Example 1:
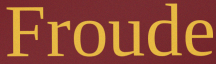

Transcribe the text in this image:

Froude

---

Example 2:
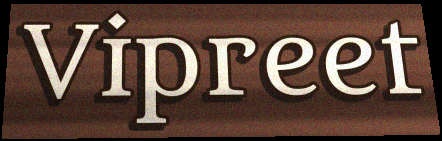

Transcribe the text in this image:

Vipreet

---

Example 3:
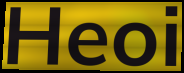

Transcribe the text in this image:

Heoi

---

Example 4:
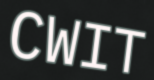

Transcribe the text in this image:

CWIT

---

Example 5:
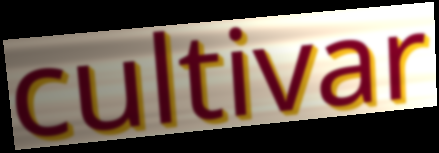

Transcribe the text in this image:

cultivar